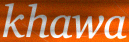
khawa